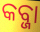
କବ୍ଜା